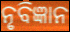
ନୃବିଜ୍ଞାନ